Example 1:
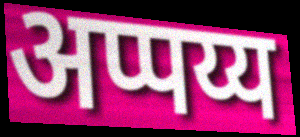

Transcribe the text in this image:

अप्पय्य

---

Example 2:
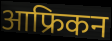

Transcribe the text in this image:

आफ्रिकन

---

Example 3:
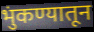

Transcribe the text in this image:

भुंकण्यातून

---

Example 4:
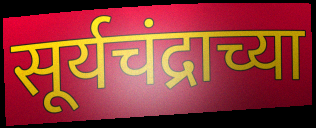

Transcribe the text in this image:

सूर्यचंद्राच्या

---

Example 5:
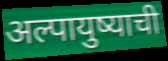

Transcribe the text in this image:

अल्पायुष्याची